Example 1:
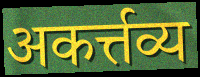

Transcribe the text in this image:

अकर्त्तव्य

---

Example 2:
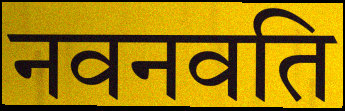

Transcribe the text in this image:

नवनवति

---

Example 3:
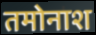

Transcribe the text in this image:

तमोनाश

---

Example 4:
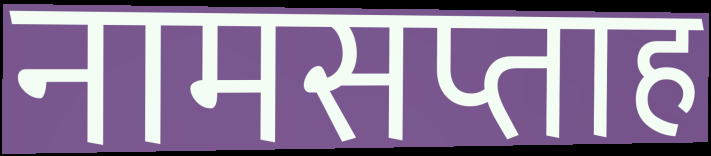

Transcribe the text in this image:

नामसप्ताह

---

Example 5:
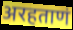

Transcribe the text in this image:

अरहताणं